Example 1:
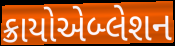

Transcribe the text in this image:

ક્રાયોએબ્લેશન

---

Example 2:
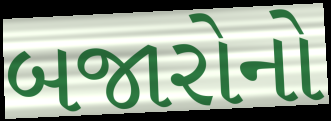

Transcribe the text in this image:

બજારોનો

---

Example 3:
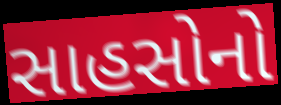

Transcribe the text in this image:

સાહસોનો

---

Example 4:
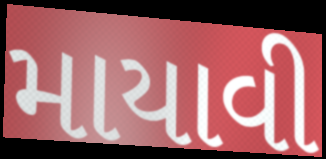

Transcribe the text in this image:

માયાવી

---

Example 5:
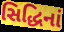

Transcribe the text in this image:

સિદ્ધિનાં